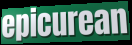
epicurean